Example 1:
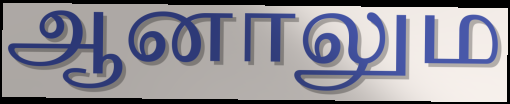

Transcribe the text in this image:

ஆனாலும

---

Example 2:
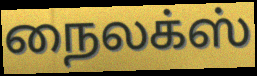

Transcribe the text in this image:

நைலக்ஸ்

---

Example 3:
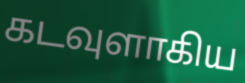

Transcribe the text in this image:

கடவுளாகிய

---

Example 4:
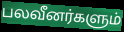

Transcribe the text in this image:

பலவீனர்களும்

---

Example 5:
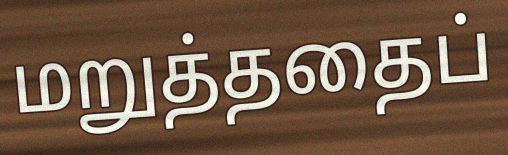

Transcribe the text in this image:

மறுத்ததைப்